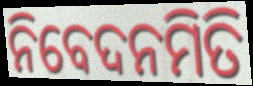
ନିବେଦନମିତି